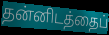
தன்னிடத்தைப்